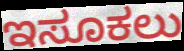
ಇಸೂಕಲು